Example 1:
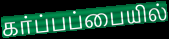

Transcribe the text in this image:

கர்ப்பப்பையில்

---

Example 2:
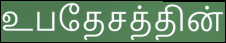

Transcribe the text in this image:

உபதேசத்தின்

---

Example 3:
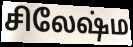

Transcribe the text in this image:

சிலேஷ்ம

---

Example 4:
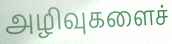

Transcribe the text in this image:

அழிவுகளைச்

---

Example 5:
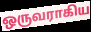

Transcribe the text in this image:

ஒருவராகிய